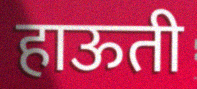
हाऊती